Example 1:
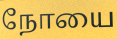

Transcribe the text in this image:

நோயை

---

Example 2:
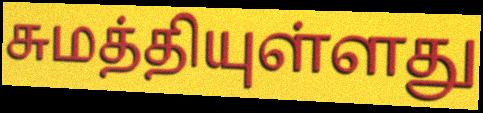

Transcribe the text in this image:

சுமத்தியுள்ளது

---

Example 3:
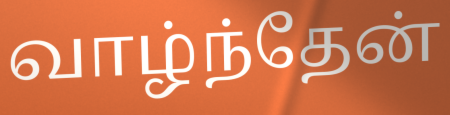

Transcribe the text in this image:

வாழ்ந்தேன்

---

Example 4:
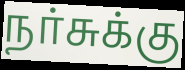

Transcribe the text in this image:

நர்சுக்கு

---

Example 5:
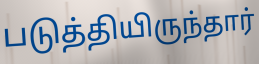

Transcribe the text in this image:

படுத்தியிருந்தார்